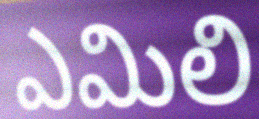
ఎమిలి